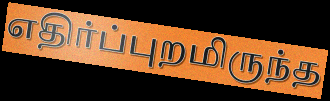
எதிர்ப்புறமிருந்த